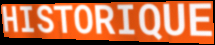
HISTORIQUE